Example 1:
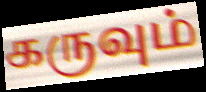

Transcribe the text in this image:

கருவும்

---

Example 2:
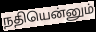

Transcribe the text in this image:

நதியென்னும்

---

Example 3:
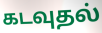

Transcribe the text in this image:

கடவுதல்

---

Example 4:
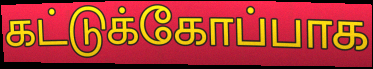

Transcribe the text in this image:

கட்டுக்கோப்பாக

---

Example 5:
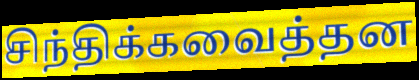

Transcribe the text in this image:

சிந்திக்கவைத்தன